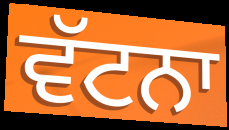
ਵੱਟਨਾ